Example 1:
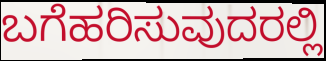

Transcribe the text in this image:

ಬಗೆಹರಿಸುವುದರಲ್ಲಿ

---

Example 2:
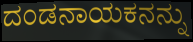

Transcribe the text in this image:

ದಂಡನಾಯಕನನ್ನು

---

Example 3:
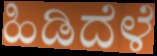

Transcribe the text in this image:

ಹಿಡಿದೆಳೆ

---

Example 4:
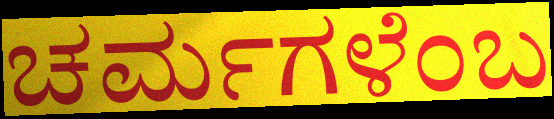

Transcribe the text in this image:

ಚರ್ಮಗಳೆಂಬ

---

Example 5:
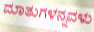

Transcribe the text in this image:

ಮಾತುಗಳನ್ನವಳು